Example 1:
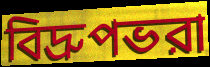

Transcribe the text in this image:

বিদ্রুপভরা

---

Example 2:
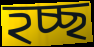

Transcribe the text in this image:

হচ্ছ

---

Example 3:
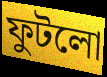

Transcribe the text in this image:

ফুটলো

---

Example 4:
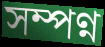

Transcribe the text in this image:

সম্পণ্ন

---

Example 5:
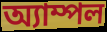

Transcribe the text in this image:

অ্যাম্পল